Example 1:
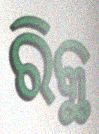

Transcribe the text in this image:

ରିକ୍ଥ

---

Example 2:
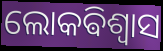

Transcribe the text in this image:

ଲୋକଵିଶ୍ଵାସ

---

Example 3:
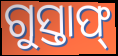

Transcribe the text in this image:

ଗୁସ୍ତାଫ୍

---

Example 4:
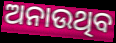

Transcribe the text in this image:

ଅନାଉଥିବ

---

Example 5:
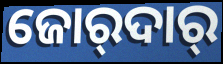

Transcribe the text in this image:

ଜୋର୍‍ଦାର୍